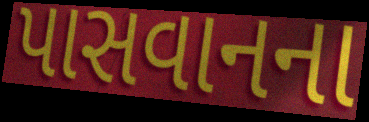
પાસવાનના